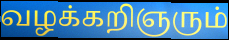
வழக்கறிஞரும்